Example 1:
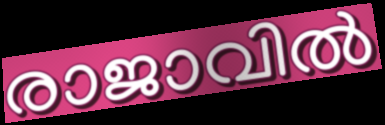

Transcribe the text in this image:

രാജാവിൽ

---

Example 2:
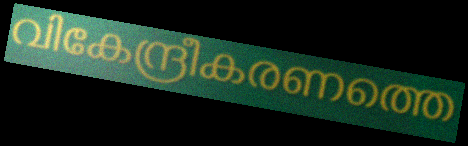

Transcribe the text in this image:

വികേന്ദ്രീകരണത്തെ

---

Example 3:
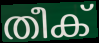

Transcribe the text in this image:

തീക്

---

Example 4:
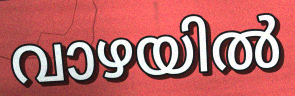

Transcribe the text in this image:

വാഴയിൽ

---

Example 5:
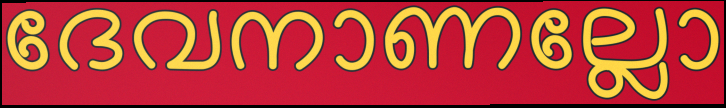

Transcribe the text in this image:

ദേവനാണല്ലോ